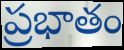
ప్రభాతం